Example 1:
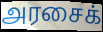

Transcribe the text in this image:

அரசைக்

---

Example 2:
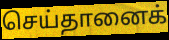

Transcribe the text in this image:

செய்தானைக்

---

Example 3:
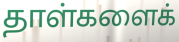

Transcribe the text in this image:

தாள்களைக்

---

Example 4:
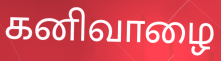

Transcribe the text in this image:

கனிவாழை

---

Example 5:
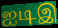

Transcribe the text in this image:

ஐடிஇ